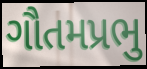
ગૌતમપ્રભુ